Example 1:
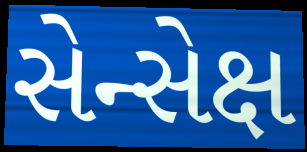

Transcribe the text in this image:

સેન્સેક્ષ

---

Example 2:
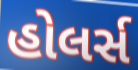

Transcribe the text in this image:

હોલર્સ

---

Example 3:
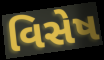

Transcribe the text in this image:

વિસેષ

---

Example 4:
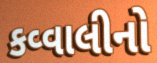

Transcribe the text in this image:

કવ્વાલીનો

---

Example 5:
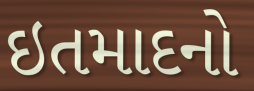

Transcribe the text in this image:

ઇતમાદનો